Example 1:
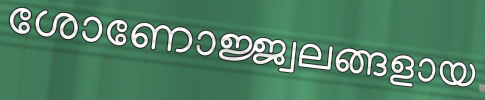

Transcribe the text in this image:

ശോണോജ്ജ്വലങ്ങളായ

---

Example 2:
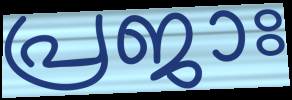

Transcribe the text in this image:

പ്രജാഃ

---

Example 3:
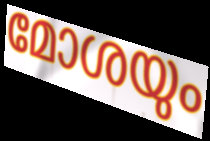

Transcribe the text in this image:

മോശയും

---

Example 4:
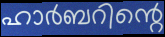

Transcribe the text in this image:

ഹാർബറിന്റെ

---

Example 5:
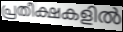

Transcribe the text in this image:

പ്രതീക്ഷകളിൽ